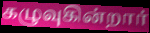
கழுவுகின்றார்